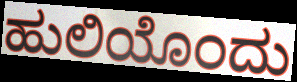
ಹುಲಿಯೊಂದು